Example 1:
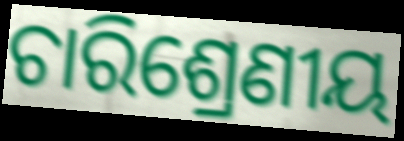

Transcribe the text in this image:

ଚାରିଶ୍ରେଣୀୟ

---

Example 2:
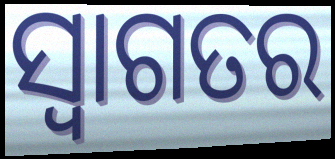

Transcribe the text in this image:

ସ୍ଵାଗତର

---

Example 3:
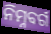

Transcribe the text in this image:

ନିମ୍ନବର୍ଗ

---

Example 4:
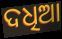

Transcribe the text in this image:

ଦଧିଆ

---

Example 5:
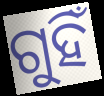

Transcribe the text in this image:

ଗୁହିଁ